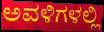
ಅವಳಿಗಳಲ್ಲಿ